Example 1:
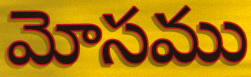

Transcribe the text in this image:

మోసము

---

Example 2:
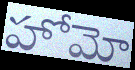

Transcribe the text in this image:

హోమో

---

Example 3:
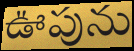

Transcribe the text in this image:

ఊపును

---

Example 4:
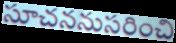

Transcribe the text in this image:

సూచననుసరించి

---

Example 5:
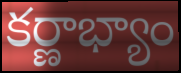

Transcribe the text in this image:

కర్ణాభ్యాం